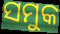
ସମୁକ